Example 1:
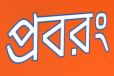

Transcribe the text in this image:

প্রবরং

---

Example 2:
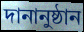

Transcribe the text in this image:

দানানুষ্ঠান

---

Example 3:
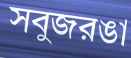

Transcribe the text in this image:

সবুজরঙা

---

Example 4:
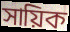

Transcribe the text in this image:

সায়িক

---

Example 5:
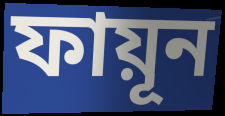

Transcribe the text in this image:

ফায়ূন